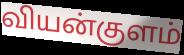
வியன்குளம்